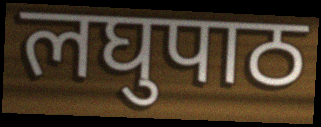
लघुपाठ